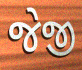
જેજી